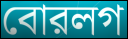
বোরলগ